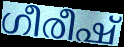
ഗീരീഷ്